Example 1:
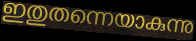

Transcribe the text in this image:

ഇതുതന്നെയാകുന്നു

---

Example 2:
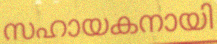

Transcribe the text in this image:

സഹായകനായി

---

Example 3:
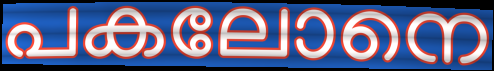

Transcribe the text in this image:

പകലോനെ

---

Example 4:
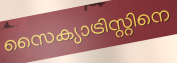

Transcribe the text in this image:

സൈക്യാട്രിസ്റ്റിനെ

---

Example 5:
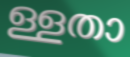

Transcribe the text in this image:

ള്ളതാ